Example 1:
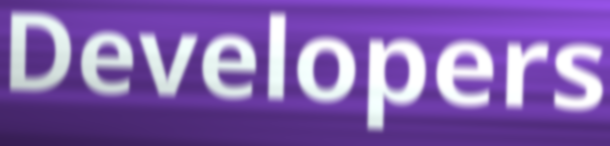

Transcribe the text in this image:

Developers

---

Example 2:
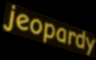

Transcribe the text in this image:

jeopardy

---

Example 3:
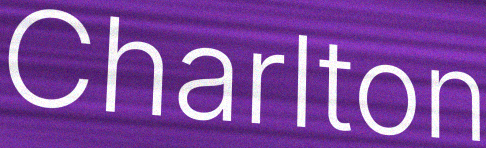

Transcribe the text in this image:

Charlton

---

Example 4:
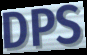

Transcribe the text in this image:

DPS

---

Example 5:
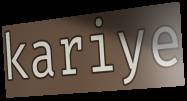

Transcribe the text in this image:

kariye